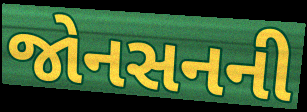
જોનસનની